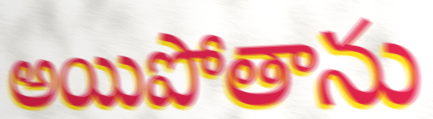
అయిపోతాను